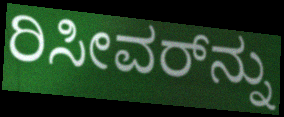
ರಿಸೀವರ್‌ನ್ನು